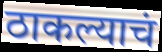
ठाकल्याचं